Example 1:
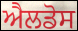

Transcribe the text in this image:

ਐਲਡੋਸ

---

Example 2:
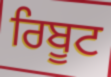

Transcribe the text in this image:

ਰਿਬੂਟ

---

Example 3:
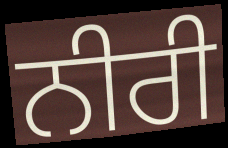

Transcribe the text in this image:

ਨੀਰੀ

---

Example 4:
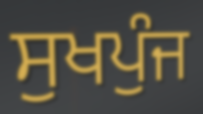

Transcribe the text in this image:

ਸੁਖਪੁੰਜ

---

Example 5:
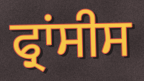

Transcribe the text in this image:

ਫ੍ਰਾਂਸੀਸ